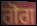
ਗੋਗ